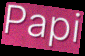
Papi